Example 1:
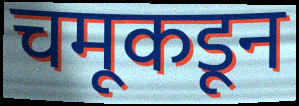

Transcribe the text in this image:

चमूकडून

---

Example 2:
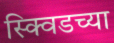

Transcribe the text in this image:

स्क्विडच्या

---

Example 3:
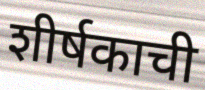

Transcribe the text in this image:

शीर्षकाची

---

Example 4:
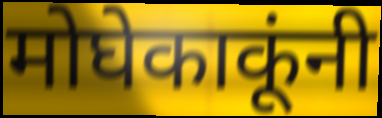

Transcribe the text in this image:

मोघेकाकूंनी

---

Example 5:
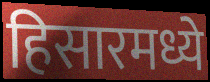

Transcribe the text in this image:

हिसारमध्ये